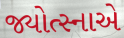
જ્યોત્સ્નાએ